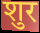
शुर